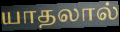
யாதலால்